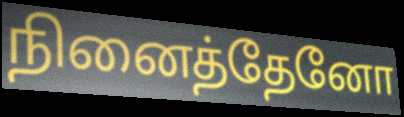
நினைத்தேனோ